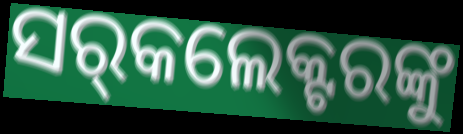
ସର୍‌କଲେକ୍ଟରଙ୍କୁ